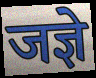
जज्ञे